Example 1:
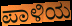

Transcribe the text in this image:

ಪಾಳಿಯ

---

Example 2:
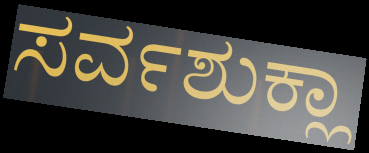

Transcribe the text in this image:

ಸರ್ವಶುಕ್ಲಾ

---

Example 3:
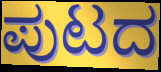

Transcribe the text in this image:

ಪುಟದ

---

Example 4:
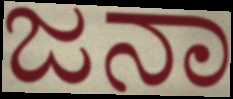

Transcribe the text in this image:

ಜನಾ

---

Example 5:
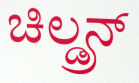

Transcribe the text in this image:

ಚಿಲ್ಡ್ರನ್